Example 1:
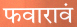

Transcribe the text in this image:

फवारावं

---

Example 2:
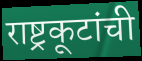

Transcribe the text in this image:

राष्ट्रकूटांची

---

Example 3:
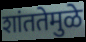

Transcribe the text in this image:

शांततेमुळे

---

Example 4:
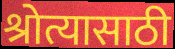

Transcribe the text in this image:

श्रोत्यासाठी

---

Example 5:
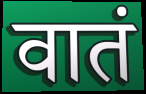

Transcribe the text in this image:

वातं